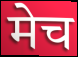
मेच